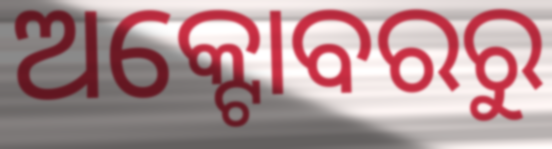
ଅକ୍ଟୋବରରୁ